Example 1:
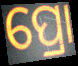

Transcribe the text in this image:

ପ୍ରୋ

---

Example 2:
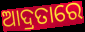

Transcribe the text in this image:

ଆଦ୍ରତାରେ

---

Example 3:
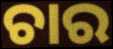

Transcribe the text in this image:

ଚାର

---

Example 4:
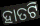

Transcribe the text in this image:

ହାତଟି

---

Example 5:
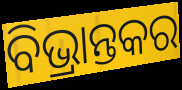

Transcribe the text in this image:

ବିଭ୍ରାନ୍ତକର